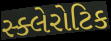
સ્ક્લેરોટિક